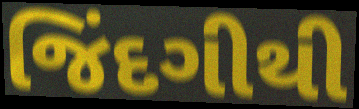
જિંદગીથી